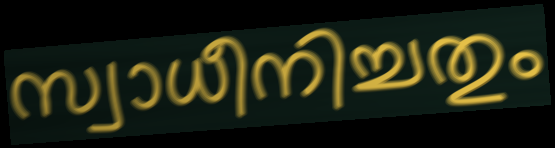
സ്വാധീനിച്ചതും